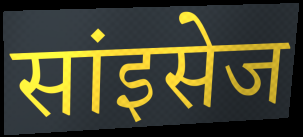
सांइसेज